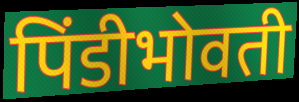
पिंडीभोवती